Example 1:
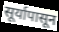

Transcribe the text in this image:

सूर्यापासून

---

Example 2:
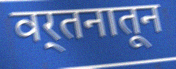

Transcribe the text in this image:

वर्तनातून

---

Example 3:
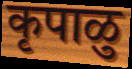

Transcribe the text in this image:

कृपाळु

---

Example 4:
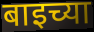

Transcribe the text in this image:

बाइच्या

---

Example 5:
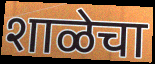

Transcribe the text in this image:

शाळेचा